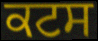
ਕਟਸ